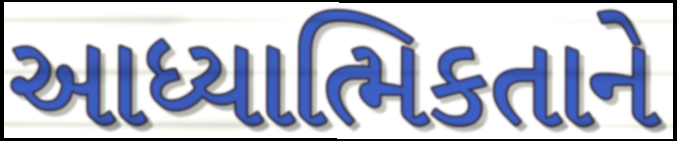
આધ્યાત્મિકતાને